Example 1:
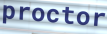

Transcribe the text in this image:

proctor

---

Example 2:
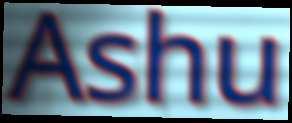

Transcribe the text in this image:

Ashu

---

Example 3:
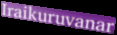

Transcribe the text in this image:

Iraikuruvanar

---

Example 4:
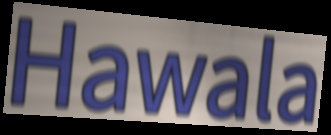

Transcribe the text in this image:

Hawala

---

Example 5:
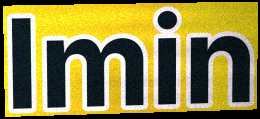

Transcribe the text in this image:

Imin